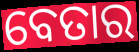
ବେତାର